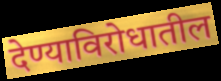
देण्याविरोधातील